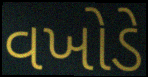
વખોડે